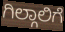
ಗಿಲ್ಗಾಲಿಗೆ